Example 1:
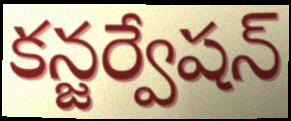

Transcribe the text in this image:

కన్జర్వేషన్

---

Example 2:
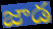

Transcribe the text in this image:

జాడ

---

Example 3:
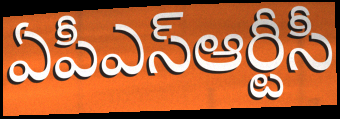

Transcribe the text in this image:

ఏపీఎస్ఆర్టీసీ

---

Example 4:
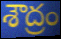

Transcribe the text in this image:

శౌద్రం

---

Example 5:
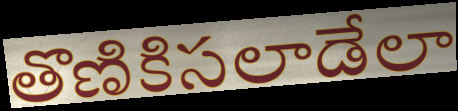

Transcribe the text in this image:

తొణికిసలాడేలా